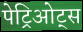
पेट्रिओट्स